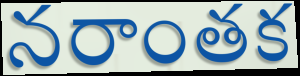
నరాంతక